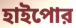
হাইপোর